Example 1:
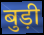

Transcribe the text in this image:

बुड़ी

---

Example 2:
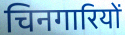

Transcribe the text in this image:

चिनगारियों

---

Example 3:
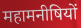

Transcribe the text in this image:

महामनीषियों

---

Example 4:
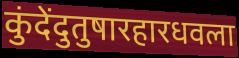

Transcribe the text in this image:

कुंदेंदुतुषारहारधवला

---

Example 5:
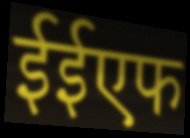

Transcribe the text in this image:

ईईएफ